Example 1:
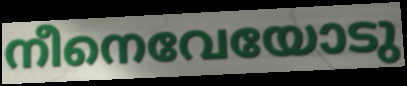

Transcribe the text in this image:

നീനെവേയോടു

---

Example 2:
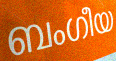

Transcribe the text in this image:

ബംഗീയ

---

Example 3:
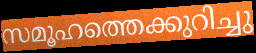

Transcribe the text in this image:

സമൂഹത്തെക്കുറിച്ചു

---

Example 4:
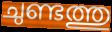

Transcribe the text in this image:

ചുണ്ടത്തു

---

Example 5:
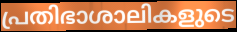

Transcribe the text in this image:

പ്രതിഭാശാലികളുടെ